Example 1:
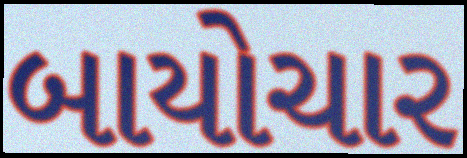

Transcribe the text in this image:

બાયોચાર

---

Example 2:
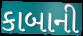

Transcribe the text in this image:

કાબાની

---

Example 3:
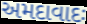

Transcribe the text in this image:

અમદાવાદઃ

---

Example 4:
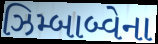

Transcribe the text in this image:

ઝિમ્બાબ્વેના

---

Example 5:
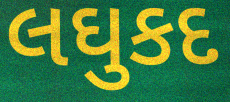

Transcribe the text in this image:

લઘુકદ